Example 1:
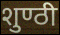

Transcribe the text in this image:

शुण्ठी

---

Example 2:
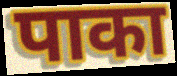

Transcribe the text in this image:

पाका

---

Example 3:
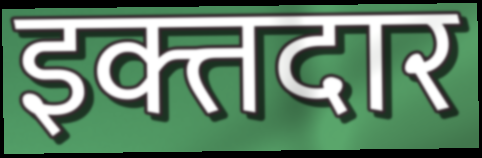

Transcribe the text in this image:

इक्तदार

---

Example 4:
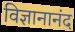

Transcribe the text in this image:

विज्ञानानंद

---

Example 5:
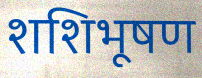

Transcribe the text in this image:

शशिभूषण